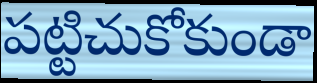
పట్టిచుకోకుండా